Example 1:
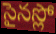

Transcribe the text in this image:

సైనస్లో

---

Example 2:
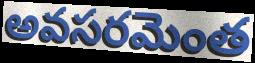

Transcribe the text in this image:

అవసరమెంత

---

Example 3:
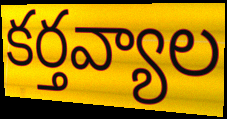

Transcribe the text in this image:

కర్తవ్యాల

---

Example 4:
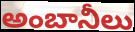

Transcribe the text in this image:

అంబానీలు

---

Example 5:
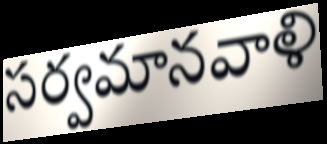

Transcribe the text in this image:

సర్వమానవాళి